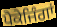
ਪੈਕੇਜਿੰਗਾਂ